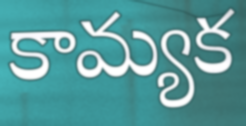
కామ్యక